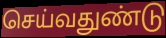
செய்வதுண்டு